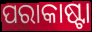
ପରାକାଷ୍ଟା